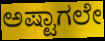
ಅಷ್ಟಾಗಲೇ